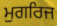
ਮੁਗਰਿਜ